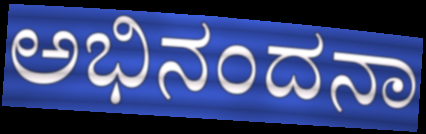
ಅಭಿನಂದನಾ